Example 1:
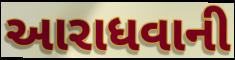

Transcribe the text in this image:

આરાધવાની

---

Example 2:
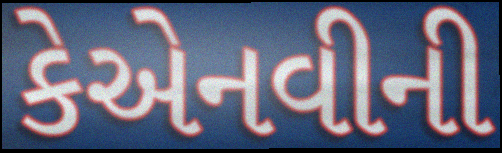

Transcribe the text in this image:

કેએનવીની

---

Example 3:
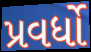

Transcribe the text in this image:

પ્રવર્ધો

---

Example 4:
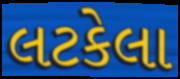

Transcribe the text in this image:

લટકેલા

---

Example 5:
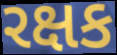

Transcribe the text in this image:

રક્ષક